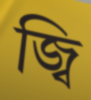
জ্বি